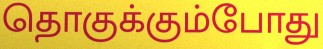
தொகுக்கும்போது